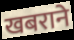
खबराने